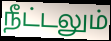
நீட்டலும்